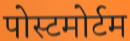
पोस्टमोर्टम